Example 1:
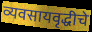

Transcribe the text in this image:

व्यवसायवृद्धीचे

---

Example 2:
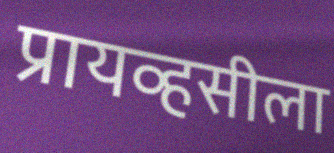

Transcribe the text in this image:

प्रायव्हसीला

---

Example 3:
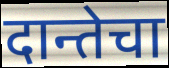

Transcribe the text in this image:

दान्तेचा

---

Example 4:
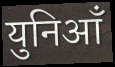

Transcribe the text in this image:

युनिआँ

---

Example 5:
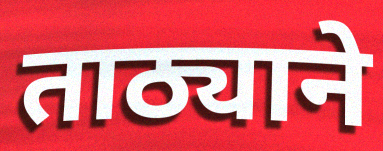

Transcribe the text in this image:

ताठ्याने